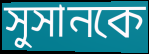
সুসানকে